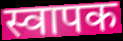
स्‍वापक